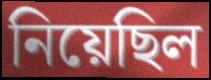
নিয়েছিল